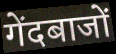
गेंदबाजों